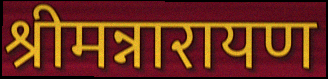
श्रीमन्नारायण